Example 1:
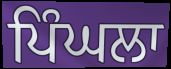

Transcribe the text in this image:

ਪਿੰਘਲਾ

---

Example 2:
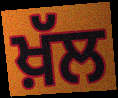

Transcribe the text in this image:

ਖ਼ੱਲ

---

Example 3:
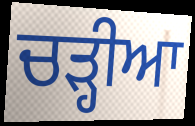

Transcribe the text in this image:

ਚੜ੍ਹੀਆ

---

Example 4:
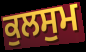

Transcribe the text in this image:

ਕੁਲਸੁਮ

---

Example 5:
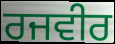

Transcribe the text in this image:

ਰਜਵੀਰ